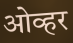
ओव्हर